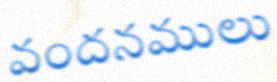
వందనములు